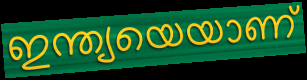
ഇന്ത്യയെയാണ്